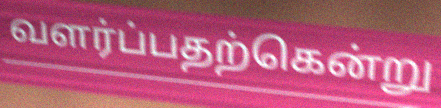
வளர்ப்பதற்கென்று